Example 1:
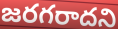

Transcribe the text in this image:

జరగరాదని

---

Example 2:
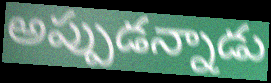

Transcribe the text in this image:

అప్పుడన్నాడు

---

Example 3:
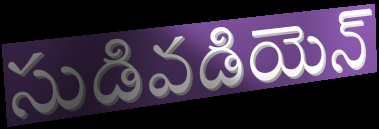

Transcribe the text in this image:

సుడివడియెన్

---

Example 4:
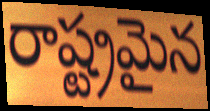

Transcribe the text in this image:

రాష్ట్రమైన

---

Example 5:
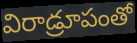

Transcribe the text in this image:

విరాడ్రూపంతో